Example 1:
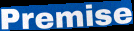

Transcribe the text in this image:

Premise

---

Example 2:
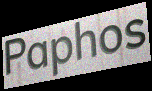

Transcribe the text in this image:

Paphos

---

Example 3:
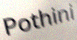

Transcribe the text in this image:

Pothini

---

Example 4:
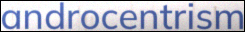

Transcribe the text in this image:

androcentrism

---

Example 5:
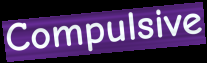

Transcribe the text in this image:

Compulsive